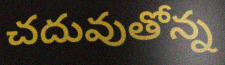
చదువుతోన్న